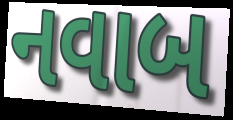
નવાબ